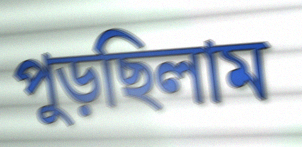
পুড়ছিলাম